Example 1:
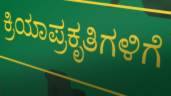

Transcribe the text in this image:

ಕ್ರಿಯಾಪ್ರಕೃತಿಗಳಿಗೆ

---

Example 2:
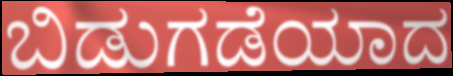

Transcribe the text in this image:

ಬಿಡುಗಡೆಯಾದ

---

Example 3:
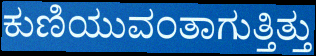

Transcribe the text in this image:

ಕುಣಿಯುವಂತಾಗುತ್ತಿತ್ತು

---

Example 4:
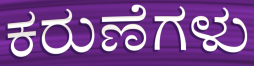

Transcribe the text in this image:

ಕರುಣೆಗಳು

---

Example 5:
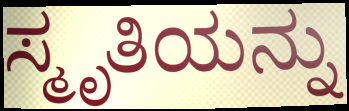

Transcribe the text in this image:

ಸ್ಮೃತಿಯನ್ನು